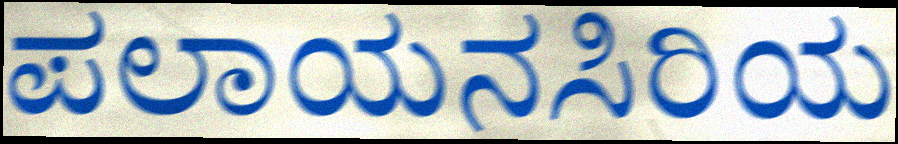
ಪಲಾಯನಸಿರಿಯ